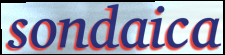
sondaica